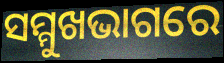
ସମ୍ମୁଖଭାଗରେ